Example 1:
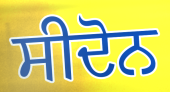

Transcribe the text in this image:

ਸੀਦੋਨ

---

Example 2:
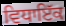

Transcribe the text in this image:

ਵਿਧਾਇੱਕ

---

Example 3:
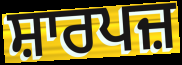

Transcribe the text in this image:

ਸ਼ਾਰਪਜ਼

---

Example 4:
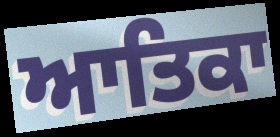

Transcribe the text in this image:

ਆਤਿਕਾ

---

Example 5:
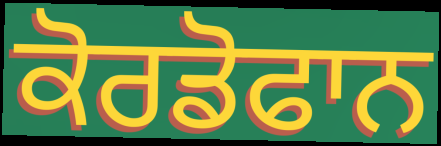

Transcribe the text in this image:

ਕੋਰਡੋਫਾਨ